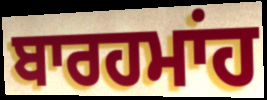
ਬਾਰਹਮਾਂਹ